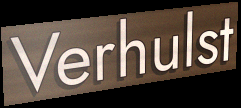
Verhulst